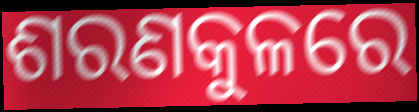
ଶରଣକୁଳରେ